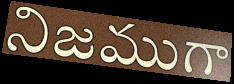
నిజముగా